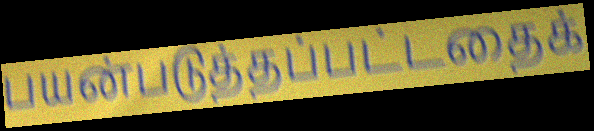
பயன்படுத்தப்பட்டதைக்